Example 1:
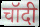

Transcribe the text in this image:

चॉदी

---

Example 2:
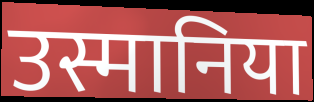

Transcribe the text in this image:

उस्मानिया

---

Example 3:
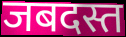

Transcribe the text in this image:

जबदस्त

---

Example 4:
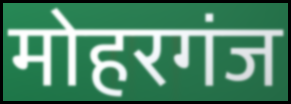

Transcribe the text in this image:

मोहरगंज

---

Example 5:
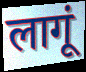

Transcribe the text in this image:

लागूं